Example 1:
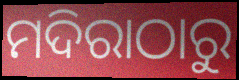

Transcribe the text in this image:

ମଦିରାଠାରୁ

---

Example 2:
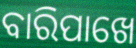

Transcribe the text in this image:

ବାରିପାଖେ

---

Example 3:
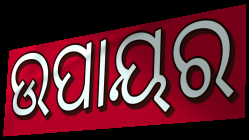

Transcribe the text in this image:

ଉପାୟର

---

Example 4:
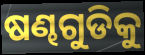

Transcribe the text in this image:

ଷଣ୍ଢଗୁଡିକୁ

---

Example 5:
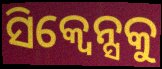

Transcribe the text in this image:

ସିକ୍ୱେନ୍ସକୁ